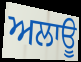
ਅਲਾਊ